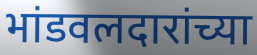
भांडवलदारांच्या